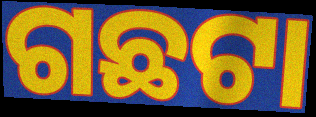
ଗଛଟା